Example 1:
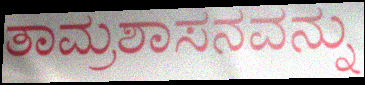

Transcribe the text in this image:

ತಾಮ್ರಶಾಸನವನ್ನು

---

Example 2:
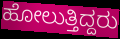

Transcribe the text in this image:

ಹೋಲುತ್ತಿದ್ದರು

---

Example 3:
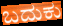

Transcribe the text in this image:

ಬದುಕು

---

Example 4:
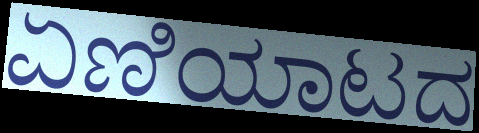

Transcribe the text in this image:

ಏಣಿಯಾಟದ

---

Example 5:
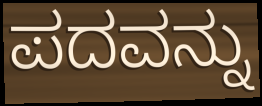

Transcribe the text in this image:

ಪದವನ್ನು